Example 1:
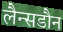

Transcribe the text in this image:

लैन्सडौन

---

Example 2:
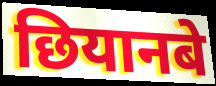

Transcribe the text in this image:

छियानबे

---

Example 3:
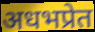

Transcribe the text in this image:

अधभप्रेत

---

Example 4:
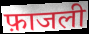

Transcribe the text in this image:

फ़ाजली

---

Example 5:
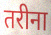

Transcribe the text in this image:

तरीना